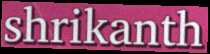
shrikanth